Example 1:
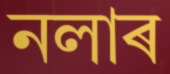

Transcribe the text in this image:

নলাৰ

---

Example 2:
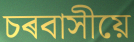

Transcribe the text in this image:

চৰবাসীয়ে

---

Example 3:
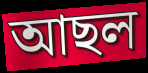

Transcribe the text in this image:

আছল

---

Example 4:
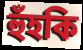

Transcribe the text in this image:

হুঁহকি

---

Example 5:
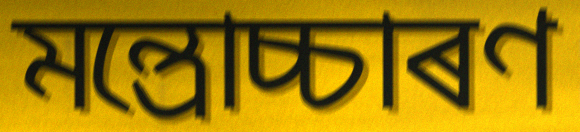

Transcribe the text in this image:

মন্ত্ৰোচ্চাৰণ